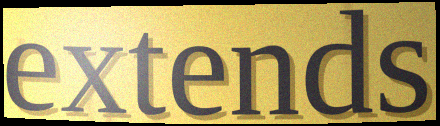
extends